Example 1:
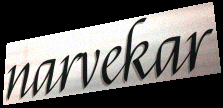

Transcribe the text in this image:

narvekar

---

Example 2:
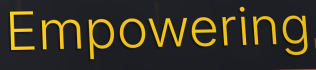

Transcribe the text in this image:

Empowering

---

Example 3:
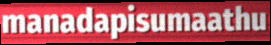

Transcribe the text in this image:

manadapisumaathu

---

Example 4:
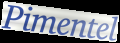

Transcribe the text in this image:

Pimentel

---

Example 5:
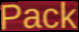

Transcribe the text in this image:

Pack